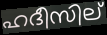
ഹദീസില്